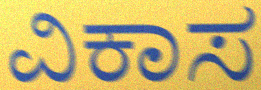
ವಿಕಾಸ